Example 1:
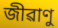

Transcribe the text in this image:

জীৱাণু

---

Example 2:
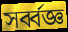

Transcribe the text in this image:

সৰ্ব্বজ্ঞ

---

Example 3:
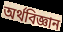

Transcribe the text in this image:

অৰ্থবিজ্ঞান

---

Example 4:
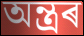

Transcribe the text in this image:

অন্ত্ৰৰ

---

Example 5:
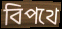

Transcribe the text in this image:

বিপথে